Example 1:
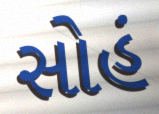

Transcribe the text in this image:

સોહં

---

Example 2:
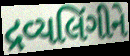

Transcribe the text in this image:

દ્રવ્યલિંગીને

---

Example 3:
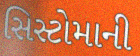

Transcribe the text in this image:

સિસ્ટોમાની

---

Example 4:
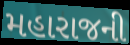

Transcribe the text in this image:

મહારાજની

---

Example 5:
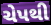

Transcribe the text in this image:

ચેપથી